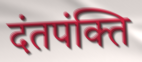
दंतपंक्ति